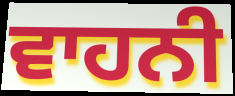
ਵਾਹਨੀ